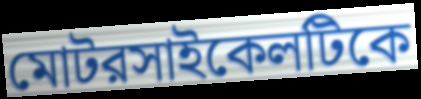
মোটরসাইকেলটিকে